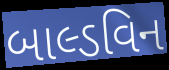
બાલ્ડવિન